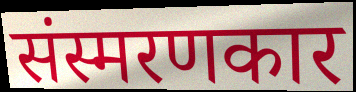
संस्मरणकार